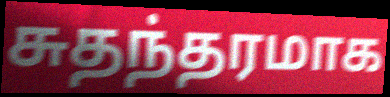
சுதந்தரமாக